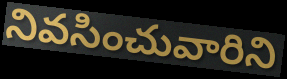
నివసించువారిని